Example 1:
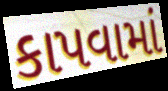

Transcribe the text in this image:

કાપવામાં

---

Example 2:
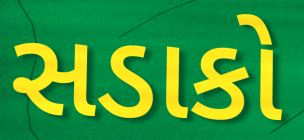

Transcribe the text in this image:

સડાકો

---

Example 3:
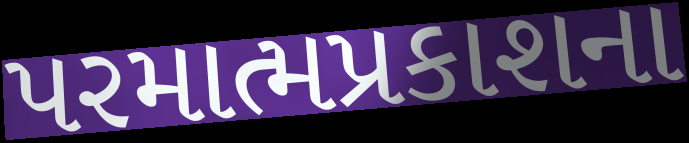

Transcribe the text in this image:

પરમાત્મપ્રકાશના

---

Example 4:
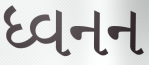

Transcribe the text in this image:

ધ્વનન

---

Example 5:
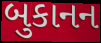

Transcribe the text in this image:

બુકાનન